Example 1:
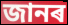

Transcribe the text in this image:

জানৰ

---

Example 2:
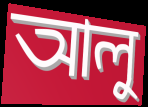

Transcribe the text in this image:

আলু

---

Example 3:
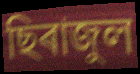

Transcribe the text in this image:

ছিৰাজুল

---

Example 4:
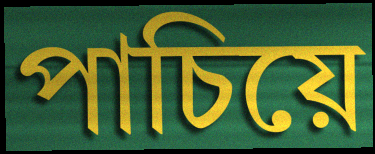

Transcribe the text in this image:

পাচিয়ে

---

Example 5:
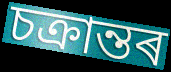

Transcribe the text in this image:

চক্ৰান্তৰ